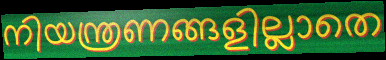
നിയന്ത്രണങ്ങളില്ലാതെ